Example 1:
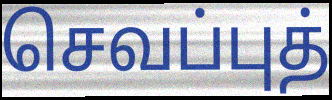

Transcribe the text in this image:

செவப்புத்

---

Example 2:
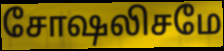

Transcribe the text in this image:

சோஷலிசமே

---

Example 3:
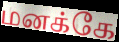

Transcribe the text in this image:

மனக்கே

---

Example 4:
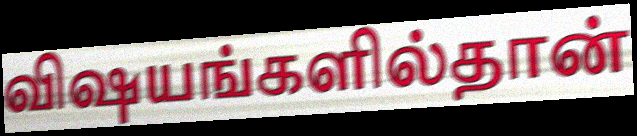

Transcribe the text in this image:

விஷயங்களில்தான்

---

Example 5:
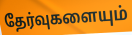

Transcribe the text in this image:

தேர்வுகளையும்